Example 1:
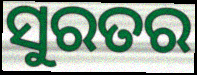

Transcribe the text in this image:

ସୁରତର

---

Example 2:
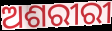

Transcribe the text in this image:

ଅଶରୀରୀ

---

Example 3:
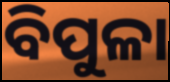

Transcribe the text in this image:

ବିପୁଳା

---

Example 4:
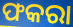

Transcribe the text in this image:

ଫକରା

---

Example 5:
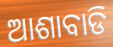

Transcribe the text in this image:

ଆଶାବାଡି